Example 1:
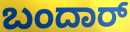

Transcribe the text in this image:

ಬಂದಾರ್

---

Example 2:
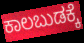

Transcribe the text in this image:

ಕಾಲಬುಡಕ್ಕೆ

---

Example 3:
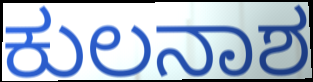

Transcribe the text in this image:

ಕುಲನಾಶ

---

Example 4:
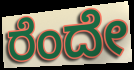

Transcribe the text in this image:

ರೆಂದೇ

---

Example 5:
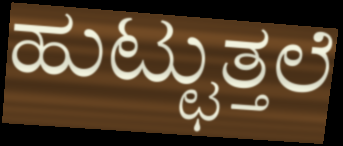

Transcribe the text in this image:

ಹುಟ್ಟುತ್ತಲೆ